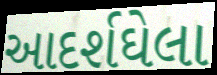
આદર્શઘેલા